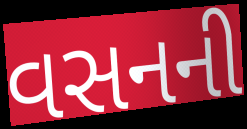
વસનની